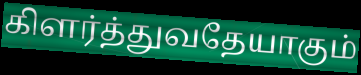
கிளர்த்துவதேயாகும்